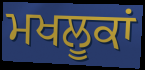
ਮਖਲੂਕਾਂ